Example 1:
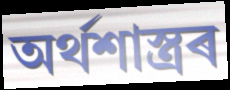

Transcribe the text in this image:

অৰ্থশাস্ত্ৰৰ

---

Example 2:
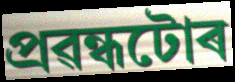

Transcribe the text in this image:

প্ৰৱন্ধটোৰ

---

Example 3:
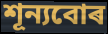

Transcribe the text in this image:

শূন্যবোৰ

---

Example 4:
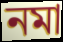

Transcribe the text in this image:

নমা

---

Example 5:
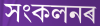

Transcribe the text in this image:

সংকলনৰ